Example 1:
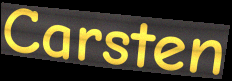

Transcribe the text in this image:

Carsten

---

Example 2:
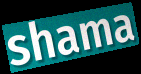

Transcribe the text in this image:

shama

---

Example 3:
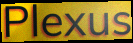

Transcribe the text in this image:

Plexus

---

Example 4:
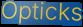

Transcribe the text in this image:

Opticks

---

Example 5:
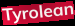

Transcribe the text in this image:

Tyrolean